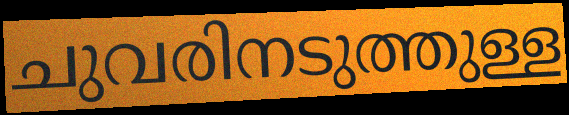
ചുവരിനടുത്തുള്ള